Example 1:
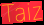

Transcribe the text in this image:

Taiz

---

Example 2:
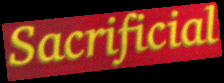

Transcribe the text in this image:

Sacrificial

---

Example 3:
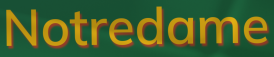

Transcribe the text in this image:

Notredame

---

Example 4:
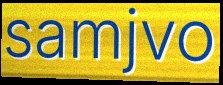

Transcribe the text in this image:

samjvo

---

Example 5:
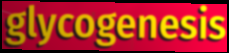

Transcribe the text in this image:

glycogenesis